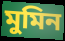
মুমিন